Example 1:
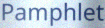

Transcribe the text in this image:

Pamphlet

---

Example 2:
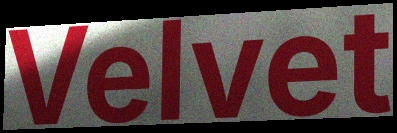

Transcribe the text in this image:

Velvet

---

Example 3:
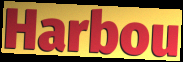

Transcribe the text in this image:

Harbou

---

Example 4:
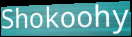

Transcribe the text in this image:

Shokoohy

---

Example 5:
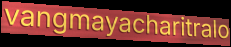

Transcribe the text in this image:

vangmayacharitralo